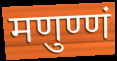
मणुण्णं